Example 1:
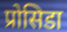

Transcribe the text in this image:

प्रोसिडा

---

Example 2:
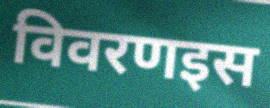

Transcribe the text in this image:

विवरणइस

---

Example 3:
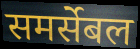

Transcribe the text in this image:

समर्सेबल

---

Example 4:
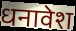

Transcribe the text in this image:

धनावेश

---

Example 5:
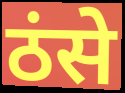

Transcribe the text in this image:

ठंसे